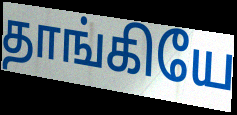
தாங்கியே